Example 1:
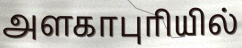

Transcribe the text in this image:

அளகாபுரியில்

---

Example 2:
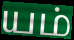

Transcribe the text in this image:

யம்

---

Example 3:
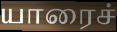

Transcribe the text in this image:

யாரைச்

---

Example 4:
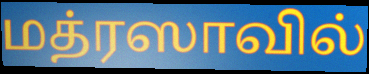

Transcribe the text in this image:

மத்ரஸாவில்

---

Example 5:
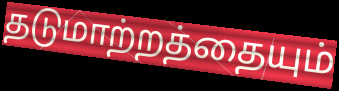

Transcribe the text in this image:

தடுமாற்றத்தையும்